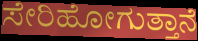
ಸೇರಿಹೋಗುತ್ತಾನೆ